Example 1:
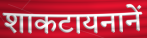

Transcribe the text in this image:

शाकटायनानें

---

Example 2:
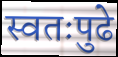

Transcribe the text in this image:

स्वतःपुढे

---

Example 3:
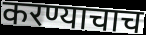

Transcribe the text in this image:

करण्याचाच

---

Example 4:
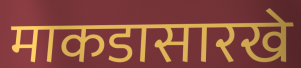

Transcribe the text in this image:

माकडासारखे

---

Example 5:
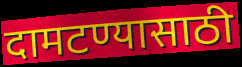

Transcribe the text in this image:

दामटण्यासाठी